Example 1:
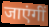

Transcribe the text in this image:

जाएंगीं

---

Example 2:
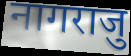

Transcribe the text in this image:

नागराजु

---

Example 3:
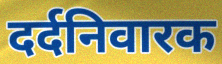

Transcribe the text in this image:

दर्दनिवारक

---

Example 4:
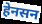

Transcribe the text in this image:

हेनसन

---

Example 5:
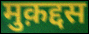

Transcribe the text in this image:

मुक़द्दस